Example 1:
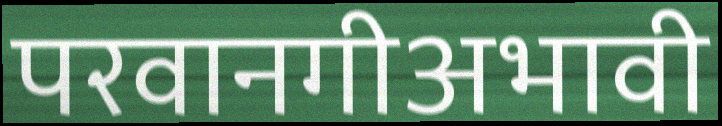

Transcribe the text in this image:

परवानगीअभावी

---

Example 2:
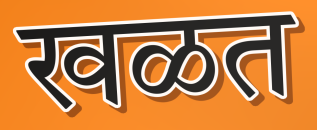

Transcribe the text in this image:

खळत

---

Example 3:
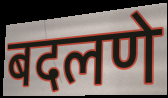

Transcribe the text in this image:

बदलणे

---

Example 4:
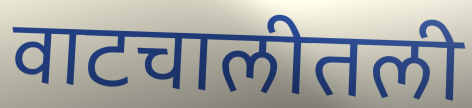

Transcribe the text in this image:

वाटचालीतली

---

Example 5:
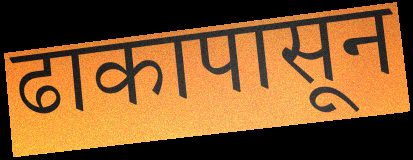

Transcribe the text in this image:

ढाकापासून